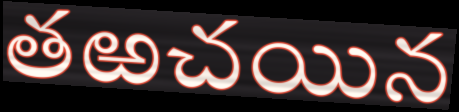
తఱచయిన